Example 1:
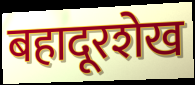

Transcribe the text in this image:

बहादूरशेख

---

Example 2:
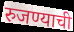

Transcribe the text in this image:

रुजण्याची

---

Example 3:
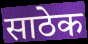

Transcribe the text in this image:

साठेक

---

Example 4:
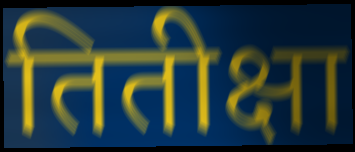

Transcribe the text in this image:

तितीक्षा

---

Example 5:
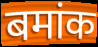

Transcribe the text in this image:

बमांक